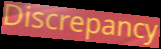
Discrepancy